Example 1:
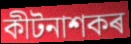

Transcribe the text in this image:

কীটনাশকৰ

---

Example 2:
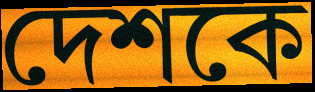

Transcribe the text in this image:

দেশকে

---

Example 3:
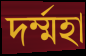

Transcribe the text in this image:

দৰ্ম্মহা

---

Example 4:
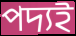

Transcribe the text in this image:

পদ্যই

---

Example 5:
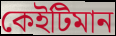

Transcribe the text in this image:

কেইটিমান